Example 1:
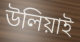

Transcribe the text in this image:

উলিয়াই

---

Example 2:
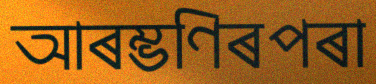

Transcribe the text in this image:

আৰম্ভণিৰপৰা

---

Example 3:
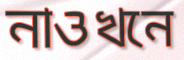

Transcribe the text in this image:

নাওখনে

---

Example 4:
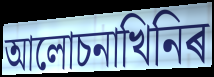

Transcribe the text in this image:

আলোচনাখিনিৰ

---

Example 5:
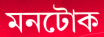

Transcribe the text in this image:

মনটোক